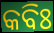
କବିଃ